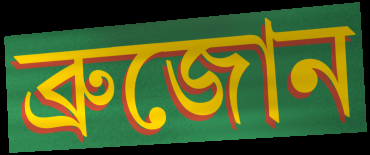
ব্রুজোন